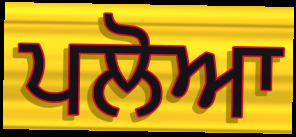
ਪਲੋਆ